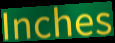
Inches